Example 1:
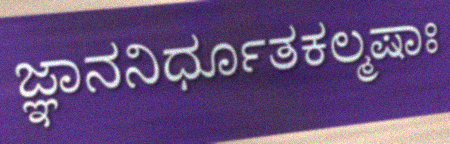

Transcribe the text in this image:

ಜ್ಞಾನನಿರ್ಧೂತಕಲ್ಮಷಾಃ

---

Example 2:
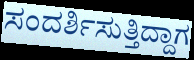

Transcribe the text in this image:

ಸಂದರ್ಶಿಸುತ್ತಿದ್ದಾಗ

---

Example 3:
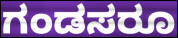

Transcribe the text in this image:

ಗಂಡಸರೂ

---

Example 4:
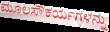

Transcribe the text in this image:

ಮೂಲಸೌಕರ್ಯಗಳನ್ನು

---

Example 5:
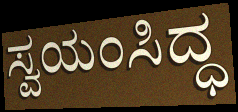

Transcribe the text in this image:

ಸ್ವಯಂಸಿದ್ಧ